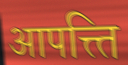
आपत्त्ति